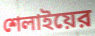
শেলাইয়ের